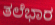
ತಲೆಭಾರ